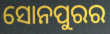
ସୋନପୁରର